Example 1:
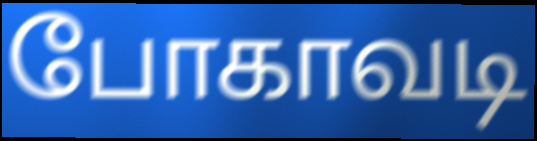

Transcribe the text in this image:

போகாவடி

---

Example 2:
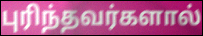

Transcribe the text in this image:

புரிந்தவர்களால்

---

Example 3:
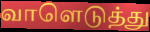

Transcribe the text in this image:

வாளெடுத்து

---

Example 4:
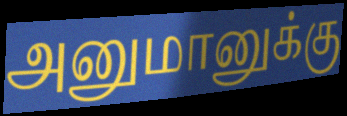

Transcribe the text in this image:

அனுமானுக்கு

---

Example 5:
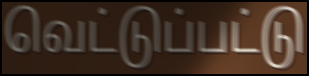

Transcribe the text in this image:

வெட்டுப்பட்டு